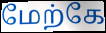
மேற்கே